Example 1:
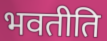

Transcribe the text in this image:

भवतीति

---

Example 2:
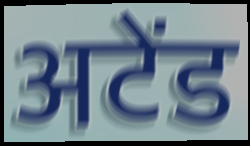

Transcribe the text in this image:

अटेंड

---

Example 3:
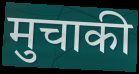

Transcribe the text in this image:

मुचाकी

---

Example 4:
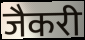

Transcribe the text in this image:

जैकरी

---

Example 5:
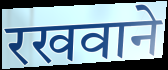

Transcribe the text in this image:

रखवाने